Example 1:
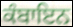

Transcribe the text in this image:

ਕੰਬਾਇਨ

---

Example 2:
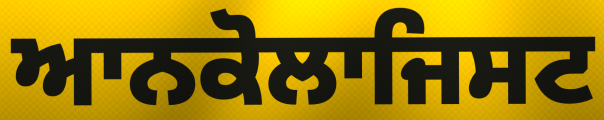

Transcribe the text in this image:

ਆਨਕੋਲਾਜਿਸਟ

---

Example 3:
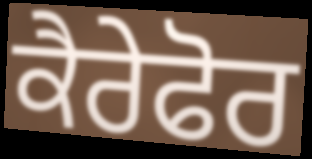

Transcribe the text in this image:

ਕੈਰੇਫੋਰ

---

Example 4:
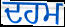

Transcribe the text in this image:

ਦਹਮ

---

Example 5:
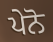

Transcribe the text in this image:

ਪੇਨੋ